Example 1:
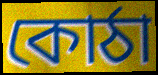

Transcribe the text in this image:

কোঠা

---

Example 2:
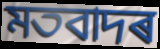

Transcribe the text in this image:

মতবাদৰ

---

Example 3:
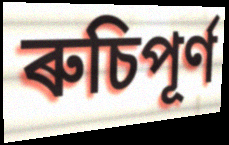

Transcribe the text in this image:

ৰুচিপূৰ্ণ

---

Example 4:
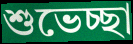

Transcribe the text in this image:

শুভেচ্ছা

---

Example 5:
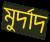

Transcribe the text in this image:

মুৰ্দাদ